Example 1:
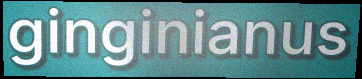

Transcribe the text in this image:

ginginianus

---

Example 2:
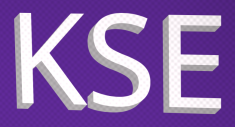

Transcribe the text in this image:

KSE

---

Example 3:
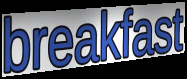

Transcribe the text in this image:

breakfast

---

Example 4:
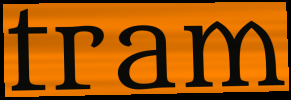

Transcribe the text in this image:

tram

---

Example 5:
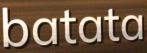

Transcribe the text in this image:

batata